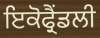
ਇਕੋਫ੍ਰੈਂਡਲੀ